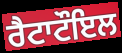
ਰੈਟਾਟੌਇਲ